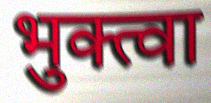
भुक्त्वा